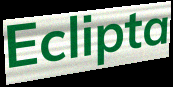
Eclipta